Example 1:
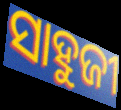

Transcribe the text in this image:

ସାହୁଜୀ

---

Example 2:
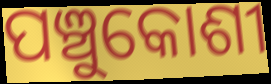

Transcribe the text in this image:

ପଞ୍ଚୁକୋଶୀ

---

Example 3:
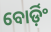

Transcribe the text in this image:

ବୋର୍ଡ଼ିଂ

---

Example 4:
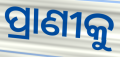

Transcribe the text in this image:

ପ୍ରାଣୀକୁ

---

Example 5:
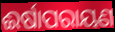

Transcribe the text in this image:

ଈର୍ଷାପରାୟଣ